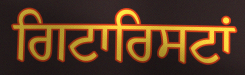
ਗਿਟਾਰਿਸਟਾਂ